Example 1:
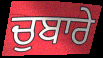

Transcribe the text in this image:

ਚੁਬਾਰੇ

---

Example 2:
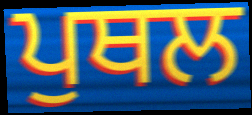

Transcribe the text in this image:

ਪੁਥਲ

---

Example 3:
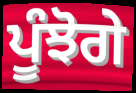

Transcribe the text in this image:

ਪੂੰਝੋਗੇ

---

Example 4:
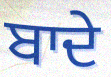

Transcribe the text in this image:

ਬਾਦੇ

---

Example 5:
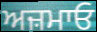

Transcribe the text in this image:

ਅਜ਼ਮਾਓ